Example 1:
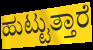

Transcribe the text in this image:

ಹುಟ್ಟುತ್ತಾರೆ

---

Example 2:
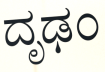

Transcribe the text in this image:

ದೃಢಂ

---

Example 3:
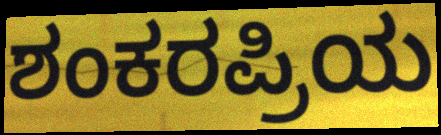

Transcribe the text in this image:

ಶಂಕರಪ್ರಿಯ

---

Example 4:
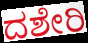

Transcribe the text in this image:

ದಶೇರಿ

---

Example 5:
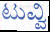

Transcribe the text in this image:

ಟುವ್ವಿ